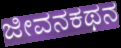
ಜೀವನಕಥನ